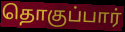
தொகுப்பார்